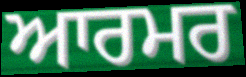
ਆਰਮਰ